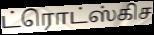
ட்ரொட்ஸ்கிச